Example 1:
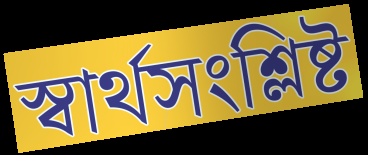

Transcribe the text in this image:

স্বার্থসংশ্লিষ্ট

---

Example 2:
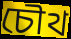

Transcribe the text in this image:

চৌথ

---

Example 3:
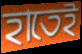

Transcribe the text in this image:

হাতেই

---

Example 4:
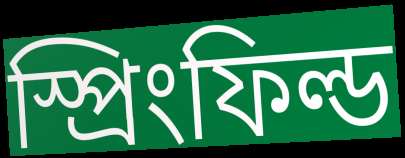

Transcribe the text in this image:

স্প্রিংফিল্ড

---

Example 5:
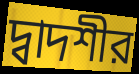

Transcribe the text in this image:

দ্বাদশীর